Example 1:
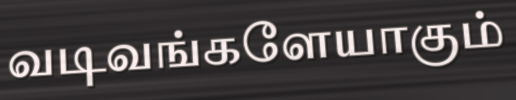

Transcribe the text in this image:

வடிவங்களேயாகும்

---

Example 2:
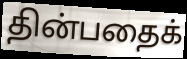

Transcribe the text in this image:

தின்பதைக்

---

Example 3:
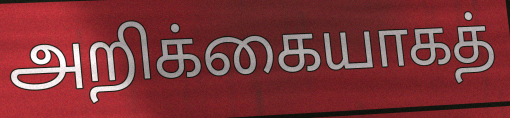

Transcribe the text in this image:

அறிக்கையாகத்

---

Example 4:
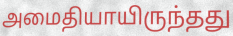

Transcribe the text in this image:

அமைதியாயிருந்தது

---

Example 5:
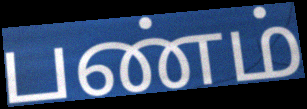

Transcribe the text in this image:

பண்ம்